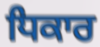
ਧਿਕਾਰ